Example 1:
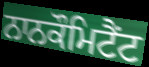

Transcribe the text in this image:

ਨਾਨਕੌਮਿਟੈਂਟ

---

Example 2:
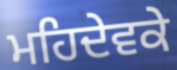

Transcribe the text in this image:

ਮਹਿਦੇਵਕੇ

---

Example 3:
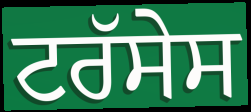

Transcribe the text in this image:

ਟਰੱਸੇਸ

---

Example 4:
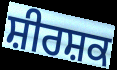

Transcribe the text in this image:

ਸ਼ੀਰਸ਼ਕ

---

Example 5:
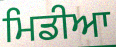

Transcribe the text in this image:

ਮਿਡੀਆ